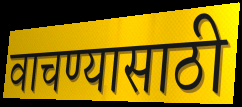
वाचण्यासाठी